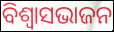
ବିଶ୍ୱାସଭାଜନ